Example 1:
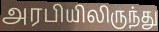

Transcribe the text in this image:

அரபியிலிருந்து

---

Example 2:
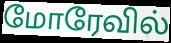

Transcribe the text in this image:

மோரேவில்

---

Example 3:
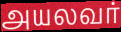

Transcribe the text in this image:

அயலவர்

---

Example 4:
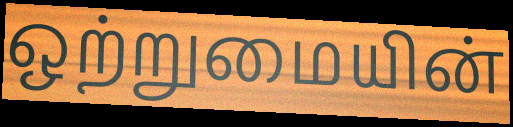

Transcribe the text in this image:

ஒற்றுமையின்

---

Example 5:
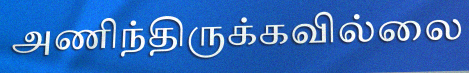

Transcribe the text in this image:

அணிந்திருக்கவில்லை